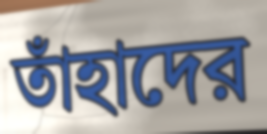
তাঁহাদের